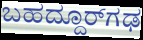
ಬಹದ್ದೂರ್‌ಗಢ